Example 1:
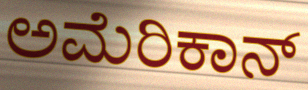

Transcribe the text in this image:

ಅಮೆರಿಕಾನ್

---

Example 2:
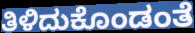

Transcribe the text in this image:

ತಿಳಿದುಕೊಂಡಂತೆ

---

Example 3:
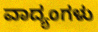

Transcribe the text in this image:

ವಾದ್ಯಂಗಳು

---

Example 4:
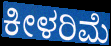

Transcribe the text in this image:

ಕೀಳರಿಮೆ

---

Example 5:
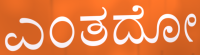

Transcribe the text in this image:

ಎಂತದೋ